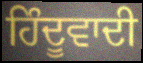
ਹਿੰਦੂਵਾਦੀ